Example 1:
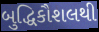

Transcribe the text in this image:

બુદ્ધિકૌશલથી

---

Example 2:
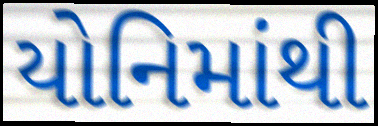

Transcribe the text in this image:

યોનિમાંથી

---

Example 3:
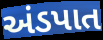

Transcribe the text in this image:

અંડપાત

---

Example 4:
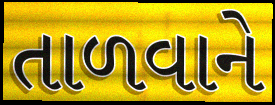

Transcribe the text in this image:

તાળવાને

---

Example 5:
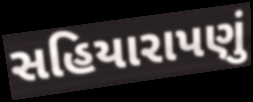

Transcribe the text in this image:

સહિયારાપણું